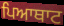
ਪਿਆਥਾਟ